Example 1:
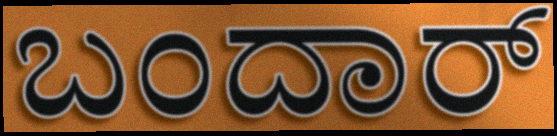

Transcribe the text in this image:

ಬಂದಾರ್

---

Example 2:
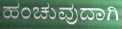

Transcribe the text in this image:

ಹಂಚುವುದಾಗಿ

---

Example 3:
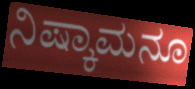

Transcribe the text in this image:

ನಿಷ್ಕಾಮನೂ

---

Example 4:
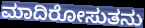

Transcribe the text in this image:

ಮಾದಿರೋಸುತನು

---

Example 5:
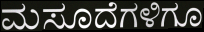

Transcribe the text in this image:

ಮಸೂದೆಗಳಿಗೂ